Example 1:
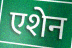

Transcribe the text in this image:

एशेन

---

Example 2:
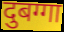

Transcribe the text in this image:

दुबग्गा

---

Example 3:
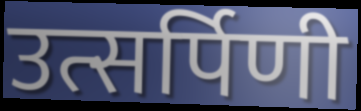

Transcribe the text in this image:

उत्सर्पिणी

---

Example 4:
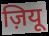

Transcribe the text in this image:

ज़ियू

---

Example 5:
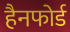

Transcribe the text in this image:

हैनफोर्ड